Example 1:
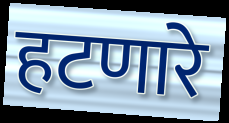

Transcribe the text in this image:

हटणारे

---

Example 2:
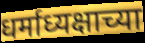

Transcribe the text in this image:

धर्माध्यक्षाच्या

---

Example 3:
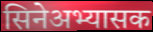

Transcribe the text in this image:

सिनेअभ्यासक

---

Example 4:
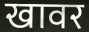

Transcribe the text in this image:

खावर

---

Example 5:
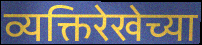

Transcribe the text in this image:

व्यक्तिरेखेच्या